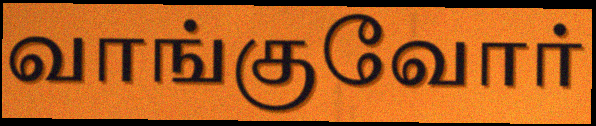
வாங்குவோர்